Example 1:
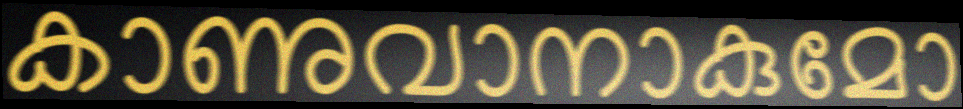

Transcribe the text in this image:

കാണുവാനാകുമോ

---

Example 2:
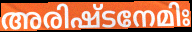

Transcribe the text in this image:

അരിഷ്ടനേമിഃ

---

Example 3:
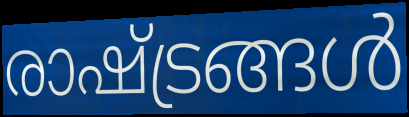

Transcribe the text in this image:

രാഷ്ട്രങ്ങൾ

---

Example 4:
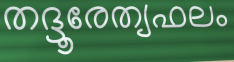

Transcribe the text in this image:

തദ്ദൂരേത്യഫലം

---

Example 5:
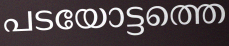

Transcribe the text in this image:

പടയോട്ടത്തെ